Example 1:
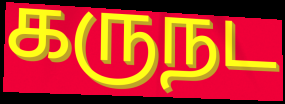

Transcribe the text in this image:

கருநட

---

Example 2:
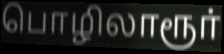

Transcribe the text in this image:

பொழிலாரூர்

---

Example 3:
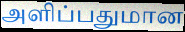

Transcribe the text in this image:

அளிப்பதுமான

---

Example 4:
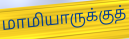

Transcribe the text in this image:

மாமியாருக்குத்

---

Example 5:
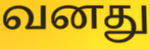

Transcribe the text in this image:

வனது